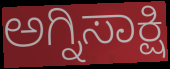
ಅಗ್ನಿಸಾಕ್ಷಿ